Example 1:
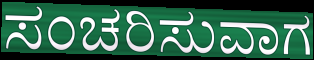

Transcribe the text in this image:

ಸಂಚರಿಸುವಾಗ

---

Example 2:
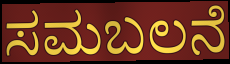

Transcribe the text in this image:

ಸಮಬಲನೆ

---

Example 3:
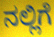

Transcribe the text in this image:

ನಲ್ಲಿಗೆ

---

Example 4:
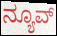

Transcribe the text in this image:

ನ್ಯೂವ್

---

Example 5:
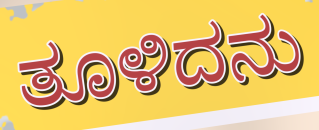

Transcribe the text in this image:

ತೂಳಿದನು